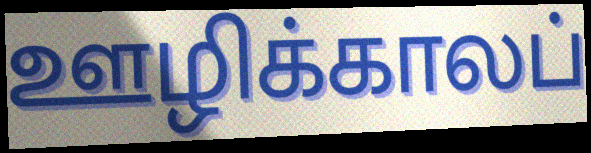
ஊழிக்காலப்